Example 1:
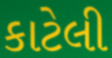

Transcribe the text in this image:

કાટેલી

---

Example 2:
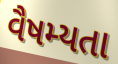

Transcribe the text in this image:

વૈષમ્યતા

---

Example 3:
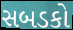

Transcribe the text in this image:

સબડકો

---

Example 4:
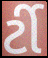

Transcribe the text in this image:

ર્ટી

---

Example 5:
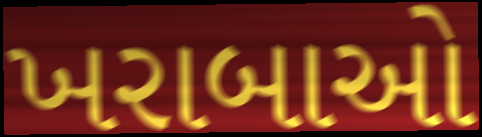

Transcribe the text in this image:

ખરાબાઓ